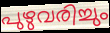
പുഴുവരിച്ചും